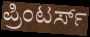
ಪ್ರಿಂಟರ್ಸ್